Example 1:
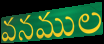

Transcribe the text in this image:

వనముల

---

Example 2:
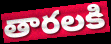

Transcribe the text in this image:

తారలకి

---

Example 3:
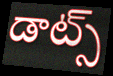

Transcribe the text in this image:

డాట్స్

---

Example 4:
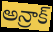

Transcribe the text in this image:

అన్రాక్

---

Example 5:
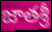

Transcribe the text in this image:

జాతశ్రీ